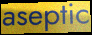
aseptic